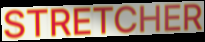
STRETCHER